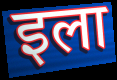
इला